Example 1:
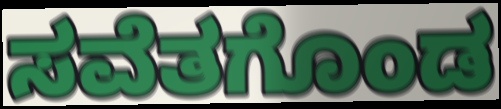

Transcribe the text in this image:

ಸವೆತಗೊಂಡ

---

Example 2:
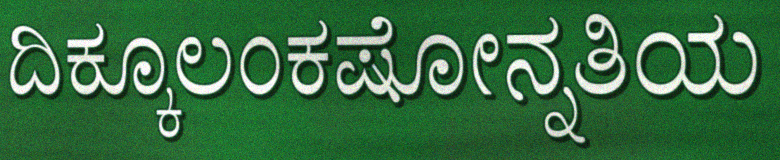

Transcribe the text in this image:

ದಿಕ್ಕೂಲಂಕಷೋನ್ನತಿಯ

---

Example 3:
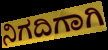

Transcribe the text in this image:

ನಿಗದಿಗಾಗಿ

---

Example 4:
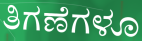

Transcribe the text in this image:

ತಿಗಣೆಗಳೂ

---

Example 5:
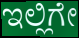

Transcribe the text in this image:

ಇಲ್ಲಿಗೇ